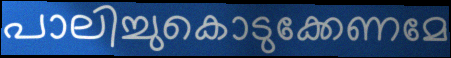
പാലിച്ചുകൊടുക്കേണമേ